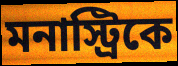
মনাস্ট্রিকে